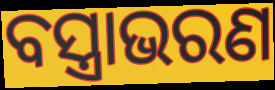
ବସ୍ତ୍ରାଭରଣ